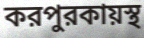
করপুরকায়স্থ